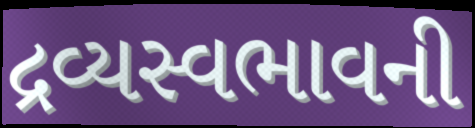
દ્રવ્યસ્વભાવની